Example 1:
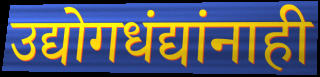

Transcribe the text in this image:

उद्योगधंद्यांनाही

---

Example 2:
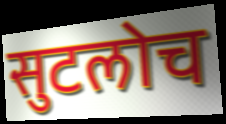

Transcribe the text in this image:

सुटलोच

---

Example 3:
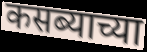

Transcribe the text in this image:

कसब्याच्या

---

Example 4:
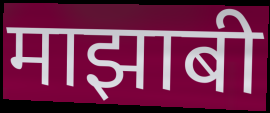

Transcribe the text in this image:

माझाबी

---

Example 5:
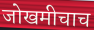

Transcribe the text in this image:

जोखमीचाच